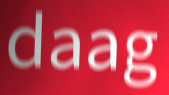
daag